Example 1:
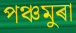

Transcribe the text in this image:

পঞ্চমুৰা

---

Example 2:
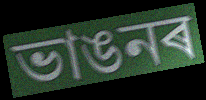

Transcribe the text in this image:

ভাঙনৰ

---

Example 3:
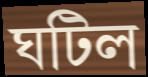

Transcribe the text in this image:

ঘটিল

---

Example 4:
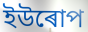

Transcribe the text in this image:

ইউৰোপ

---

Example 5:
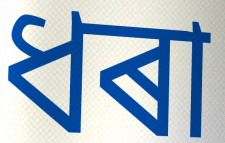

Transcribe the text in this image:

ধৰা